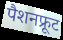
पैशनफ्रूट